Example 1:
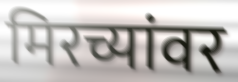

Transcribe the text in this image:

मिरच्यांवर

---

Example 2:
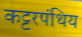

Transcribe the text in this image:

कट्टरपंथिय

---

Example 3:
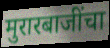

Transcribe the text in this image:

मुरारबाजींचा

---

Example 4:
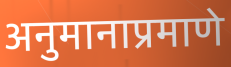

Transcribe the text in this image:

अनुमानाप्रमाणे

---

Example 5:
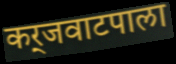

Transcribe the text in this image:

कर्जवाटपाला